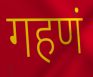
गहणं